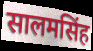
सालमसिंह